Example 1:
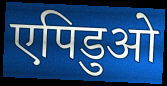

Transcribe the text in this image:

एपिडुओ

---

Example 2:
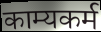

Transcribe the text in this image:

काम्यकर्म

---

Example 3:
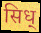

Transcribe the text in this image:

सिध्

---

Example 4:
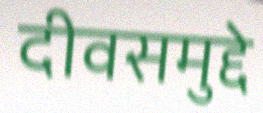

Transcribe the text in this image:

दीवसमुद्दे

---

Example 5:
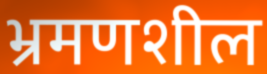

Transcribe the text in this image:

भ्रमणशील